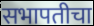
सभापतीचा